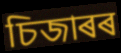
চিজাৰৰ